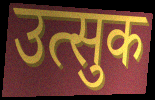
उत्सुक